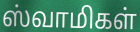
ஸ்வாமிகள்